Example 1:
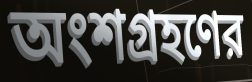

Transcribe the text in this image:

অংশগ্রহণের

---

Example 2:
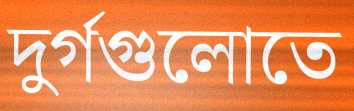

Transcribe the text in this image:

দুর্গগুলোতে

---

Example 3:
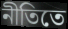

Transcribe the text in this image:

নীতিতে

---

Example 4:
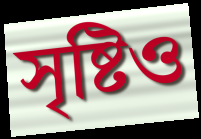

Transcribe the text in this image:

সৃষ্টিও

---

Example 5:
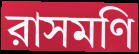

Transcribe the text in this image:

রাসমণি